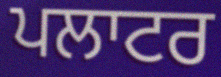
ਪਲਾਟਰ